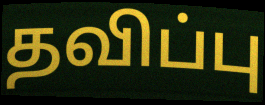
தவிப்பு